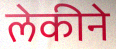
लेकीने